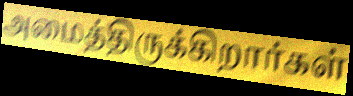
அமைத்திருக்கிறார்கள்